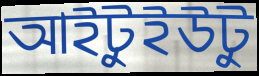
আইটুইউটু